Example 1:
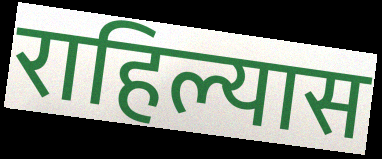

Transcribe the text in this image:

राहिल्यास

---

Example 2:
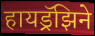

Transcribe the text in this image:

हायड्रॅझिने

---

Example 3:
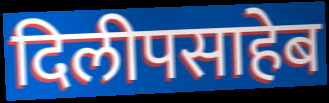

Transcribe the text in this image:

दिलीपसाहेब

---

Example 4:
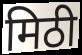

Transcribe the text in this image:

मिठी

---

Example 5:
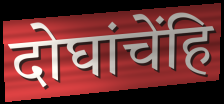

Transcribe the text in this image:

दोघांचेंहि